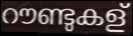
റൗണ്ടുകള്